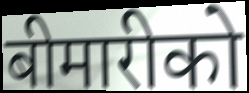
बीमारीको